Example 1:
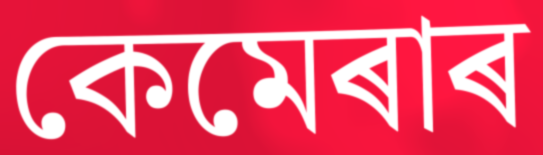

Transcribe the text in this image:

কেমেৰাৰ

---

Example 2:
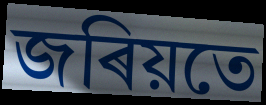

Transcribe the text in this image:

জৰিয়তে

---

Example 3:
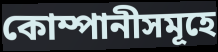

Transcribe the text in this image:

কোম্পানীসমূহে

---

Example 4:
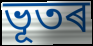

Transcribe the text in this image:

ভূতৰ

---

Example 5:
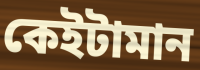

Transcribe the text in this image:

কেইটামান